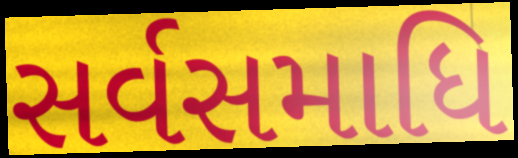
સર્વસમાધિ